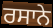
ਰਸਾਨੇ